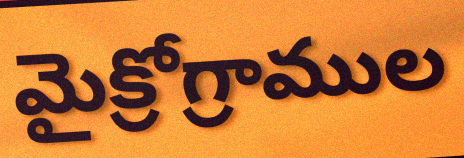
మైక్రోగ్రాముల